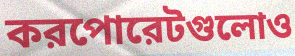
করপোরেটগুলোও